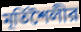
মূর্তিশৈলীর